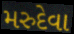
મરુદેવા